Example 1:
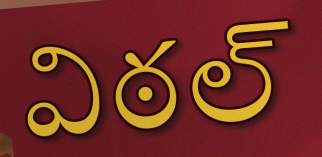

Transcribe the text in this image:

విఠల్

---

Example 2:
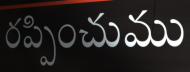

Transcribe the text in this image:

రప్పించుము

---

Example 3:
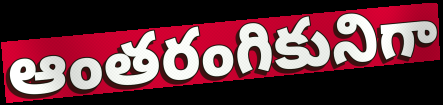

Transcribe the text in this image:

ఆంతరంగికునిగా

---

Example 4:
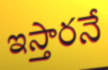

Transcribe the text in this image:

ఇస్తారనే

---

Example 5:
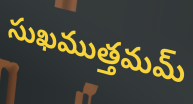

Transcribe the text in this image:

సుఖముత్తమమ్